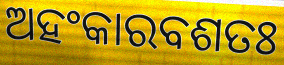
ଅହଂକାରବଶତଃ